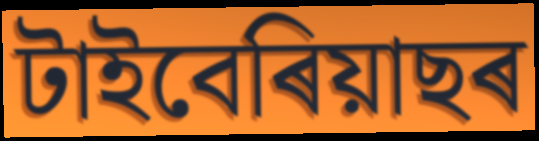
টাইবেৰিয়াছৰ